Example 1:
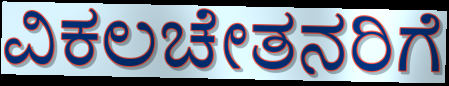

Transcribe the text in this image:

ವಿಕಲಚೇತನರಿಗೆ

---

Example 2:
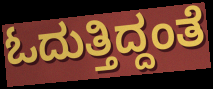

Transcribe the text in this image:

ಓದುತ್ತಿದ್ದಂತೆ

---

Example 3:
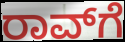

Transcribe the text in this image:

ರಾವ್‌ಗೆ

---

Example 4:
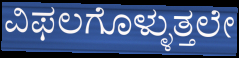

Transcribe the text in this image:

ವಿಫಲಗೊಳ್ಳುತ್ತಲೇ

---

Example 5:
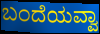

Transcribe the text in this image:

ಬಂದೆಯವ್ವಾ